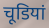
चूडियां